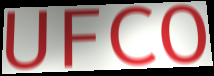
UFCO